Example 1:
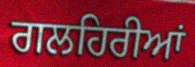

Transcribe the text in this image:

ਗਲਹਿਰੀਆਂ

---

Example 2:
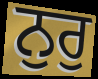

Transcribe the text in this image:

ਨੁਰੁ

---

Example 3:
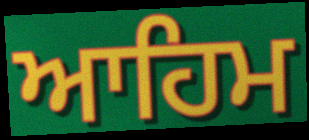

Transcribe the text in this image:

ਆਹਿਮ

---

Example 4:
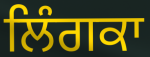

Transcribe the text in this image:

ਲਿੰਗਕਾ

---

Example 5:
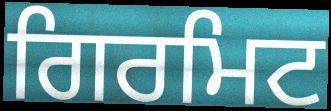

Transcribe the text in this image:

ਗਿਰਮਿਟ